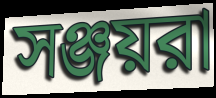
সঞ্জয়রা